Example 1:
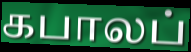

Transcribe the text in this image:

கபாலப்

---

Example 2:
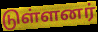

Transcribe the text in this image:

டுள்ளனர்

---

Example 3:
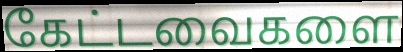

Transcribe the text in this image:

கேட்டவைகளை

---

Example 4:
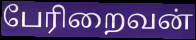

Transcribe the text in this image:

பேரிறைவன்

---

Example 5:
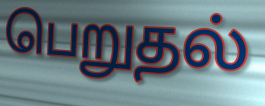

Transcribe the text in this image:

பெறுதல்